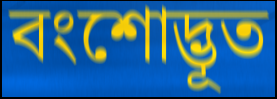
বংশোদ্ভূত